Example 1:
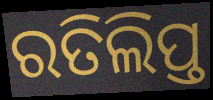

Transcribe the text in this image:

ରତିଲିପ୍ତ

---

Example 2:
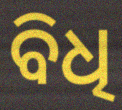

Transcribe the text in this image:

ବିଧି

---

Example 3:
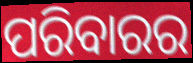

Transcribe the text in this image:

ପରିବାରର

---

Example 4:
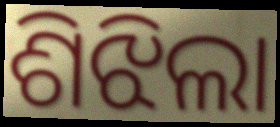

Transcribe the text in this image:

ଶିଝିଲା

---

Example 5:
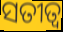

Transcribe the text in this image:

ସତୀତ୍ବ